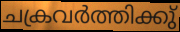
ചക്രവർത്തിക്കു്